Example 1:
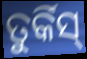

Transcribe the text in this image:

ତୁର୍କିସ୍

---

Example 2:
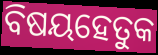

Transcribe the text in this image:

ବିଷୟହେତୁକ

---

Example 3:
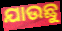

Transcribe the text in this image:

ଯାଉଛୁ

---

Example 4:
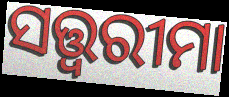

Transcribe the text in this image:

ସତ୍ତ୍ୱରୀମା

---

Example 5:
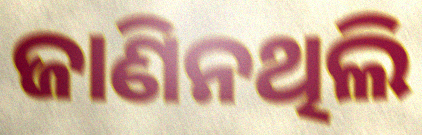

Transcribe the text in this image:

ଜାଣିନଥିଲି